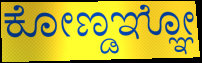
ಕೋಣ್ಡಞ್ಞೋ